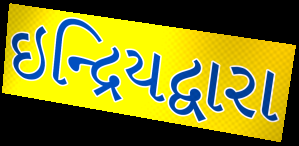
ઇન્દ્રિયદ્વારા